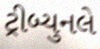
ટ્રીબ્યુનલે